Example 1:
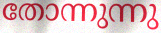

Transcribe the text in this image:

തോന്നുന്നു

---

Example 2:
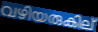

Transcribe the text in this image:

വഴിയരുകില്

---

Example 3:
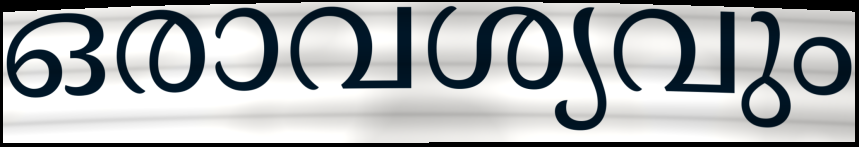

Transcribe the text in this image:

ഒരാവശ്യവും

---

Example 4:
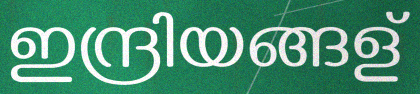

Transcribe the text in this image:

ഇന്ദ്രിയങ്ങള്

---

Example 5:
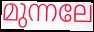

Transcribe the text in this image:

മുന്നലേ